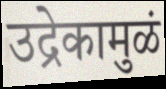
उद्रेकामुळं